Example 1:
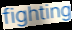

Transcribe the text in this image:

fighting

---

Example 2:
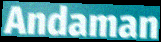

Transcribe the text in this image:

Andaman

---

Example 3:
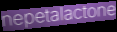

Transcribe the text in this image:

nepetalactone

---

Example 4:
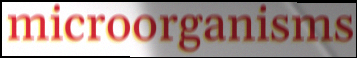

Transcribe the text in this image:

microorganisms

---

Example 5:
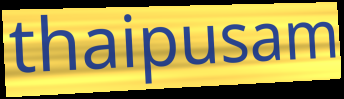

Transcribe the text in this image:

thaipusam